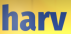
harv